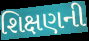
શિક્ષણની